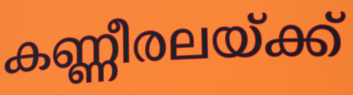
കണ്ണീരലയ്ക്ക്